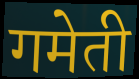
गमेती